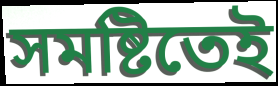
সমষ্টিতেই